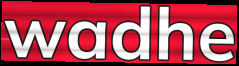
wadhe